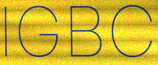
IGBC